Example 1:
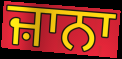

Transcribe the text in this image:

ਜ਼ਾਨਾ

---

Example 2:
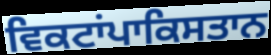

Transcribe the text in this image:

ਵਿਕਟਾਂਪਾਕਿਸਤਾਨ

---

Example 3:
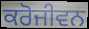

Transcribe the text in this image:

ਕਰੋਜੀਵਨ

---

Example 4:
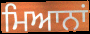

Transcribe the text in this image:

ਮਿਆਨਾਂ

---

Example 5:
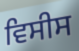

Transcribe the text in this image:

ਵਿਸੀਸ